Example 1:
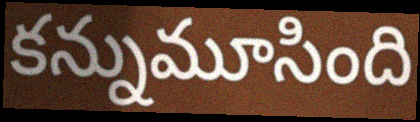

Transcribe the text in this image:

కన్నుమూసింది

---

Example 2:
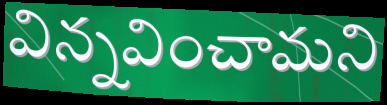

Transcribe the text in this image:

విన్నవించామని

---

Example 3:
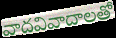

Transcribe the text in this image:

వాదవివాదాలతో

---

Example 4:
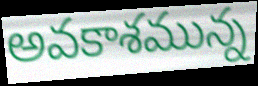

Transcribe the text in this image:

అవకాశమున్న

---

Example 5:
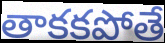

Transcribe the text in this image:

తాకకపోతే